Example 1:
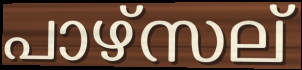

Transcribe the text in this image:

പാഴ്സല്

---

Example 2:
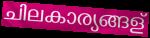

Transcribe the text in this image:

ചിലകാര്യങ്ങള്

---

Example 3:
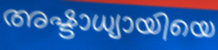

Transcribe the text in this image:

അഷ്ടാധ്യായിയെ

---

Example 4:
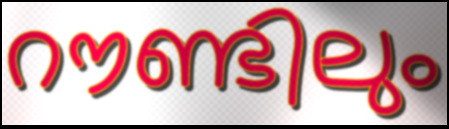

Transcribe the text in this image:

റൗണ്ടിലും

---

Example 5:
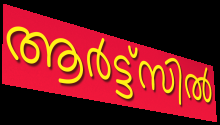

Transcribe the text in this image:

ആർട്ട്സിൽ